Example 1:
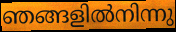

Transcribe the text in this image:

ഞങ്ങളിൽനിന്നു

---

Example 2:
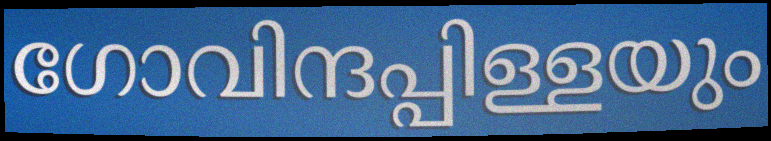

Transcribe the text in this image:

ഗോവിന്ദപ്പിള്ളയും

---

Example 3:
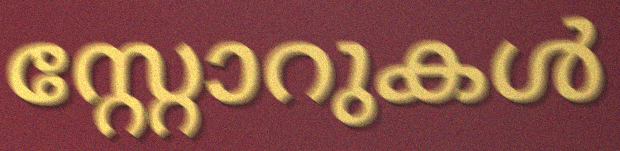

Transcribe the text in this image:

സ്റ്റോറുകൾ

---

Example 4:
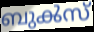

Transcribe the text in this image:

ബുൿസ്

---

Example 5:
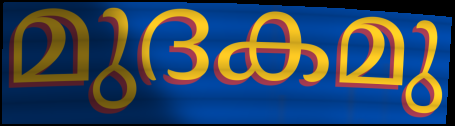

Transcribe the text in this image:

മുദകമു